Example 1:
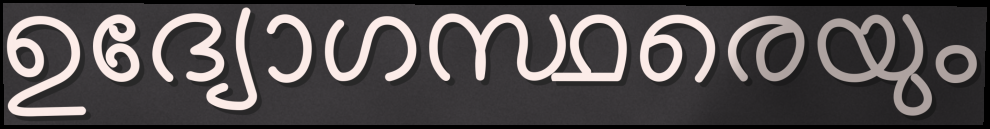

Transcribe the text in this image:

ഉദ്യോഗസ്ഥരെയും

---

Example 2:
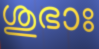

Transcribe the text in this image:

ശുഭാഃ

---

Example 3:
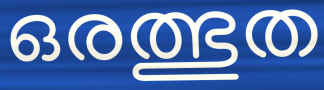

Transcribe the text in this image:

ഒരത്ഭുത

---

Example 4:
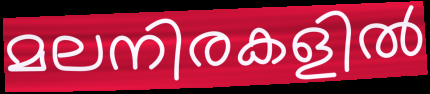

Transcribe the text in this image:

മലനിരകളിൽ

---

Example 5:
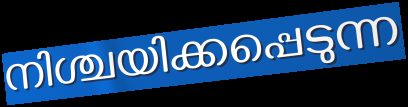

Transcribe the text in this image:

നിശ്ചയിക്കപ്പെടുന്ന